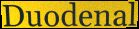
Duodenal